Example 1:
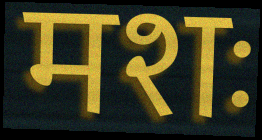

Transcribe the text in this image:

मशः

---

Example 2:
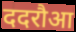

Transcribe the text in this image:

ददरौआ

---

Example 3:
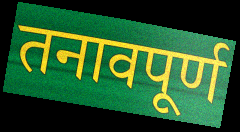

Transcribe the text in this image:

तनावपूर्ण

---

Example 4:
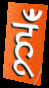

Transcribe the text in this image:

हूंँ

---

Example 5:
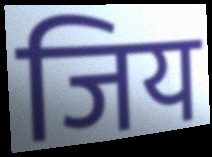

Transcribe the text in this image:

जिय